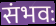
संभवः